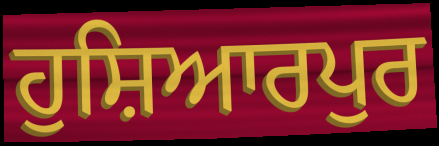
ਹੁਸ਼ਿਆਰਪੁਰ